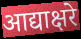
आद्याक्षरे